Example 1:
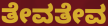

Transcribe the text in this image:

ತೇವತೇವ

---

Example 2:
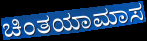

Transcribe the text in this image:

ಚಿಂತಯಾಮಾಸ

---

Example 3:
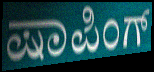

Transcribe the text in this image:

ಷಾಪಿಂಗ್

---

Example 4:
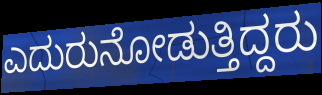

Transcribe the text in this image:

ಎದುರುನೋಡುತ್ತಿದ್ದರು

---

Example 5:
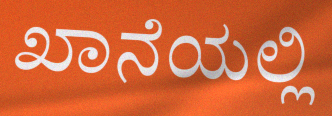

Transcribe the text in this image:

ಖಾನೆಯಲ್ಲಿ